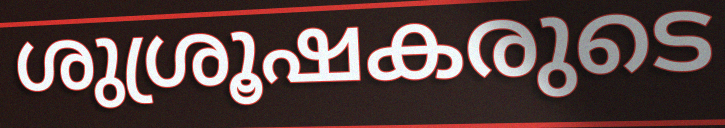
ശുശ്രൂഷകരുടെ